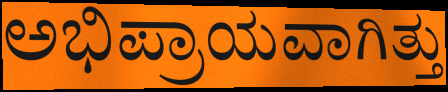
ಅಭಿಪ್ರಾಯವಾಗಿತ್ತು